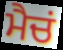
ਮੈਚਂ